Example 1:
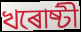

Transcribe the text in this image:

খৰোষ্টী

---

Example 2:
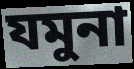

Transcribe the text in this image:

যমুনা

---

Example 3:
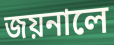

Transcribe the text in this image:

জয়নালে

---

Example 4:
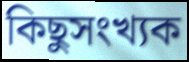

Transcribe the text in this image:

কিছুসংখ্যক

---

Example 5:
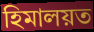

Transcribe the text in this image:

হিমালয়ত